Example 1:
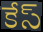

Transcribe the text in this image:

కేస్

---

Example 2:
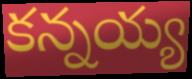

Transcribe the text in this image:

కన్నయ్య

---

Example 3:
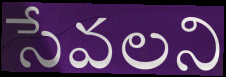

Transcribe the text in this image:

సేవలని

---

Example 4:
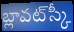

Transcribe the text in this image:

బ్లావట్‌స్కీ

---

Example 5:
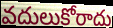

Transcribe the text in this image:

వదులుకోరాదు